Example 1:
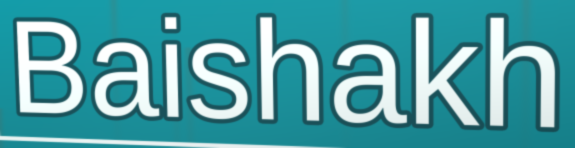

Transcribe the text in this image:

Baishakh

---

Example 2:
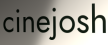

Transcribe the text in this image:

cinejosh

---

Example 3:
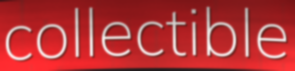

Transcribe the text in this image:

collectible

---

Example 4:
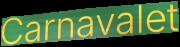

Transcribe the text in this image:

Carnavalet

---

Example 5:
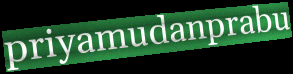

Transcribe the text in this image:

priyamudanprabu